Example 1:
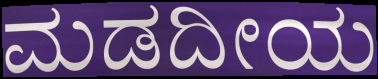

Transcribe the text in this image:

ಮಡದೀಯ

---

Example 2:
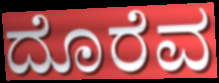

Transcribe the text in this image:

ದೊರೆವ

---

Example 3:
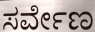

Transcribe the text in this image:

ಸರ್ವೇಣ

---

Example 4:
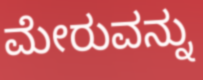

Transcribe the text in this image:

ಮೇರುವನ್ನು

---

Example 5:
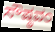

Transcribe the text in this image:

ಸೌಷ್ಠವಂ